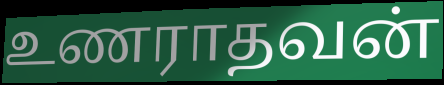
உணராதவன்